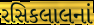
રસિકલાલનાં